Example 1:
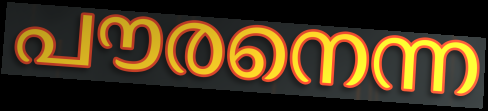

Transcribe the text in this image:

പൗരനെന്ന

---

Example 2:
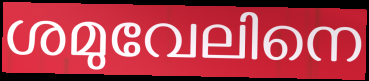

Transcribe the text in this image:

ശമുവേലിനെ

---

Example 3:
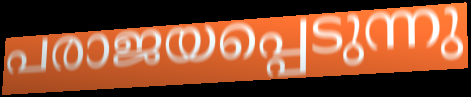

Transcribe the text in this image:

പരാജയപ്പെടുന്നു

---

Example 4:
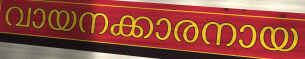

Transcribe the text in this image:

വായനക്കാരനായ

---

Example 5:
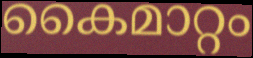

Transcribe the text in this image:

കൈമാറ്റം